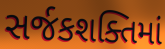
સર્જકશક્તિમાં